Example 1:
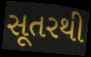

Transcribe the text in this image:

સૂતરથી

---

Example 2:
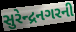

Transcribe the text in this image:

સુરેન્દ્રનગરની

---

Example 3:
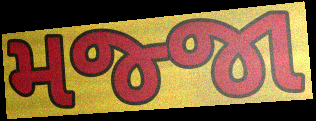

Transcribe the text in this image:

મજ્જા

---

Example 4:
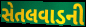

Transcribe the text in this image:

સેતલવાડની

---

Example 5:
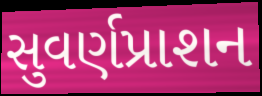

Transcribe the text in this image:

સુવર્ણપ્રાશન